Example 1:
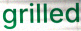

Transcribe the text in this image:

grilled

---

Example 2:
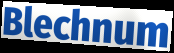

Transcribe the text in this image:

Blechnum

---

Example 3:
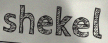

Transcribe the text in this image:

shekel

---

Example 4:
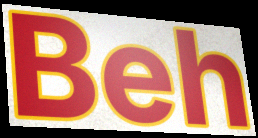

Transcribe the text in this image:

Beh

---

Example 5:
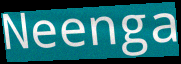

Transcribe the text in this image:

Neenga